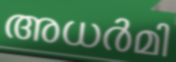
അധർമി